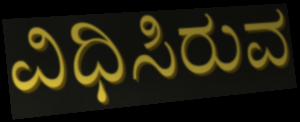
ವಿಧಿಸಿರುವ